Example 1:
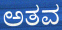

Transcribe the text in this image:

ಅತವ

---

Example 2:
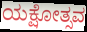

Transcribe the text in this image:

ಯಕ್ಷೋತ್ಸವ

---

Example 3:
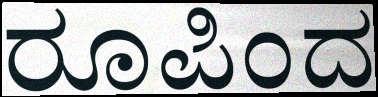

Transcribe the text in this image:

ರೂಪಿಂದ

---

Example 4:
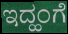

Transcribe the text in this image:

ಇದ್ಹಂಗೆ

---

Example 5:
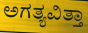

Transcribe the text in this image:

ಅಗತ್ಯವಿತ್ತಾ